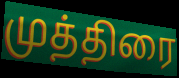
முத்திரை